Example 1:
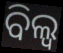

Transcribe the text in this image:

ବିଲ୍ଵ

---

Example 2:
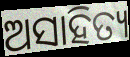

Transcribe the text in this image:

ଅସାହିତ୍ୟ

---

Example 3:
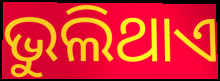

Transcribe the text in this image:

ଭୁଲିଥାଏ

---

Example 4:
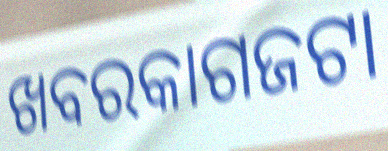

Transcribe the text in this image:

ଖବରକାଗଜଟା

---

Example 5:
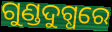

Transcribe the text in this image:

ଗୁଣ୍ଡଦୁଗ୍ଧରେ